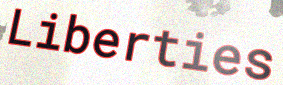
Liberties